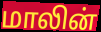
மாலின்